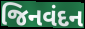
જિનવંદન